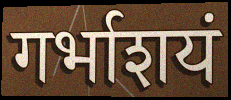
गर्भाशयं